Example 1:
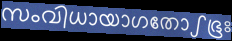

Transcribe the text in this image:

സംവിധായാഗതോഽഭൂഃ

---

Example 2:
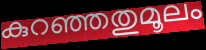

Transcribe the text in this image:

കുറഞ്ഞതുമൂലം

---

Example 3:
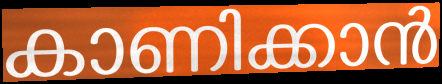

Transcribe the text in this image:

കാണിക്കാൻ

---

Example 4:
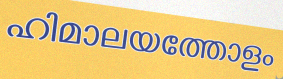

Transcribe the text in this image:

ഹിമാലയത്തോളം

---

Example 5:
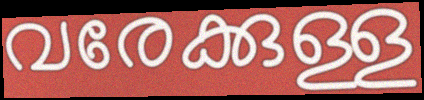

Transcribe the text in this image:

വരേക്കുള്ള